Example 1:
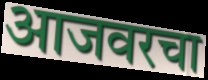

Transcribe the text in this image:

आजवरचा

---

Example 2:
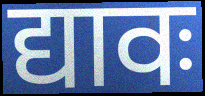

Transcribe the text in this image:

द्यावः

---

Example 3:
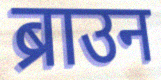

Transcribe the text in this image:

ब्राउन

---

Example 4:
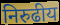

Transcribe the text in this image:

निरुढीय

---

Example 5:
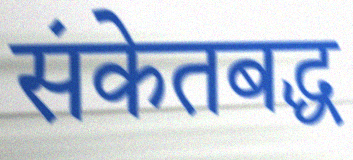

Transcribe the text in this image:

संकेतबद्ध